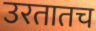
उरतातच